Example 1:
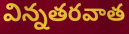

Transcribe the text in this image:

విన్నతరవాత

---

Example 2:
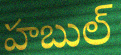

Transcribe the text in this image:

హబుల్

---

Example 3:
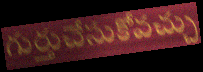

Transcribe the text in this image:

గుర్తుచేసుకోవచ్చు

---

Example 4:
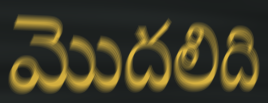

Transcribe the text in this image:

మొదలిది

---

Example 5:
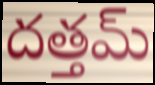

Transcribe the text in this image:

దత్తమ్